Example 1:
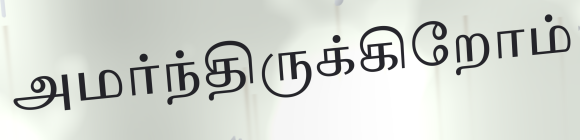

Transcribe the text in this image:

அமர்ந்திருக்கிறோம்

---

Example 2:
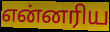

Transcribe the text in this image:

என்னரிய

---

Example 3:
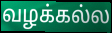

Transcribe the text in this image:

வழக்கல்ல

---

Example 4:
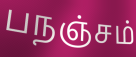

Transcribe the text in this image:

பநஞ்சம்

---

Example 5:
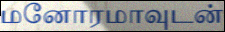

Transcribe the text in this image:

மனோரமாவுடன்